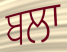
ਬਲਾ